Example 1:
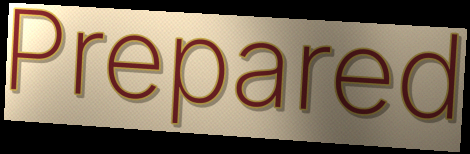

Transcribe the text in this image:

Prepared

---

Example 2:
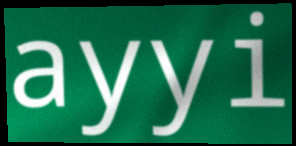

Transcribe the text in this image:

ayyi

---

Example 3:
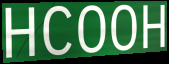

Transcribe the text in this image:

HCOOH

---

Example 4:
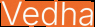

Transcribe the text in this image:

Vedha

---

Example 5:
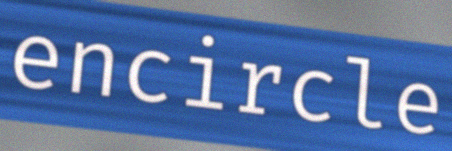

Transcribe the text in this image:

encircle